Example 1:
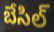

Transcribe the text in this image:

బేసిల్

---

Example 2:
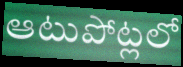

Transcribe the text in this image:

ఆటుపోట్లలో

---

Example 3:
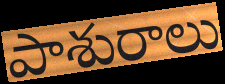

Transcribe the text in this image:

పాశురాలు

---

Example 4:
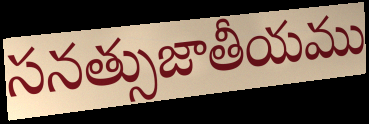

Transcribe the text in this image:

సనత్సుజాతీయము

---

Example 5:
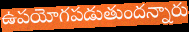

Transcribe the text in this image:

ఉపయోగపడుతుందన్నారు